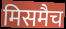
मिसमैच